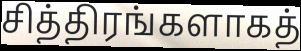
சித்திரங்களாகத்